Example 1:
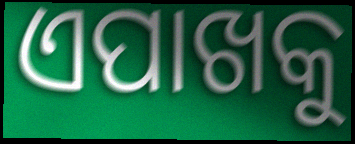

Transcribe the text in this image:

ଏପାଖକୁ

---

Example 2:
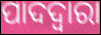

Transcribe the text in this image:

ପାଦଦ୍ଵାରା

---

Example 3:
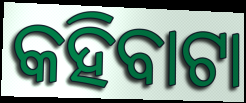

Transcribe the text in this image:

କହିବାଟା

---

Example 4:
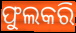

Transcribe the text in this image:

ଫୁଲକରି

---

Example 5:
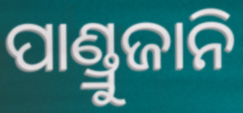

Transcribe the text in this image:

ପାଣ୍ଡ୍ରୁଜାନି